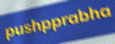
pushpprabha